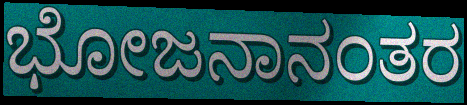
ಭೋಜನಾನಂತರ